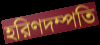
হরিণদম্পতি